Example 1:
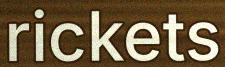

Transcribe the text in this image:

rickets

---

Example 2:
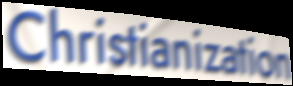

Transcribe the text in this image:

Christianization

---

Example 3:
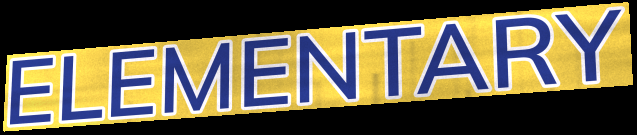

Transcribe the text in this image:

ELEMENTARY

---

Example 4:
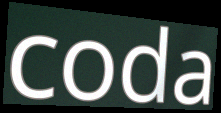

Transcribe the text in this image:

coda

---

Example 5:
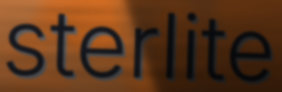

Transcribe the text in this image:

sterlite